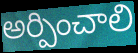
అర్పించాలి